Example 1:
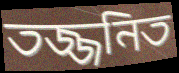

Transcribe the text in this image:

তজ্জনিত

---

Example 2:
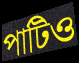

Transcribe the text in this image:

পাটিও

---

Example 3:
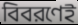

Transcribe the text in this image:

বিবরণেই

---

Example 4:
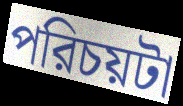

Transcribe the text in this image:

পরিচয়টা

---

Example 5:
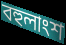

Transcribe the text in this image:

বহুলাংশ